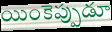
యింకెప్పుడూ